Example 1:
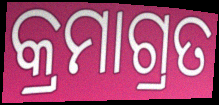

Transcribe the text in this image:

କ୍ରମାଗ୍ରତ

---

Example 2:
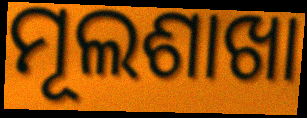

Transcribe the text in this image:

ମୂଲଶାଖା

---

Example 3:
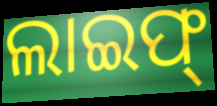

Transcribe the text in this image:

ଲାଇଫ୍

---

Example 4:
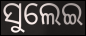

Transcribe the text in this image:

ସୁଲେଇ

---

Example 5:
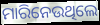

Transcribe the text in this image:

ମାରିନେଉଥିଲେ